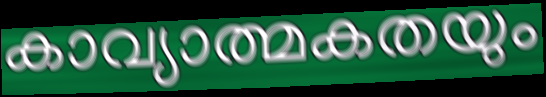
കാവ്യാത്മകതയും